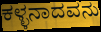
ಕಳ್ಳನಾದವನು